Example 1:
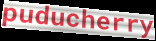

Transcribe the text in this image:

puducherry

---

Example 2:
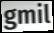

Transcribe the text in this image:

gmil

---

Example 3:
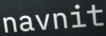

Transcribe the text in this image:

navnit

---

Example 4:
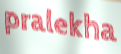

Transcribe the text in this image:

pralekha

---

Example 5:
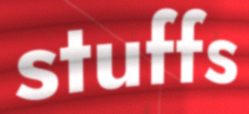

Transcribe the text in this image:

stuffs